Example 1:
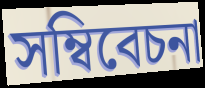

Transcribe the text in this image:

সম্বিবেচনা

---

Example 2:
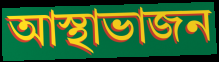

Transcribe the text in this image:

আস্থাভাজন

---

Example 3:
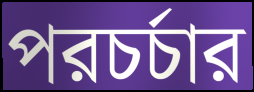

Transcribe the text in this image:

পরচর্চার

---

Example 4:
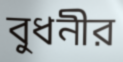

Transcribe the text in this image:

বুধনীর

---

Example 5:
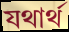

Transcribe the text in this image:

যথার্থ